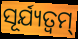
ସୂର୍ଯ୍ୟତ୍ୱମ୍